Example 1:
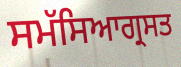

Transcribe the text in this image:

ਸਮੱਸਿਆਗ੍ਰਸਤ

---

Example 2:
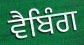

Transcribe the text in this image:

ਵੈਬਿੰਗ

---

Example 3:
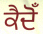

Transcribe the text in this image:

ਕੈਦੋਁ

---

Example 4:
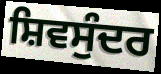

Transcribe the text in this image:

ਸ਼ਿਵਸੁੰਦਰ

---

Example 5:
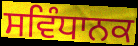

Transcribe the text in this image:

ਸਵਿੰਧਾਨਕ